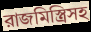
রাজমিস্ত্রিসহ